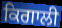
ਕਿਗਾਲੀ